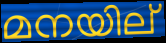
മനയില്